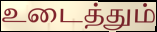
உடைத்தும்